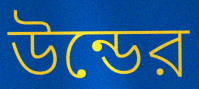
উন্ডের